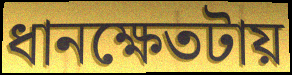
ধানক্ষেতটায়